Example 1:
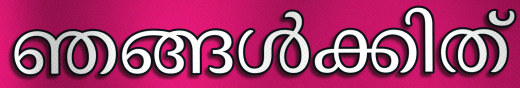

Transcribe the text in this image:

ഞങ്ങൾക്കിത്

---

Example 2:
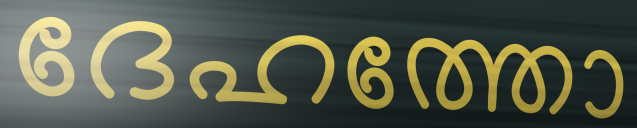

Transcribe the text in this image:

ദേഹത്തോ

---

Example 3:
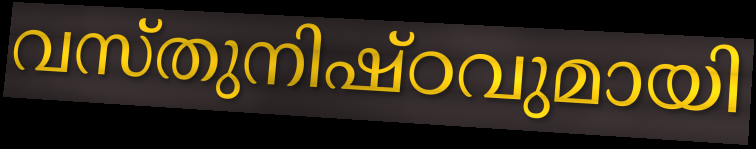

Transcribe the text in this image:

വസ്തുനിഷ്ഠവുമായി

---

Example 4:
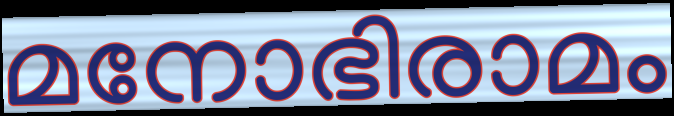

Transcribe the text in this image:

മനോഭിരാമം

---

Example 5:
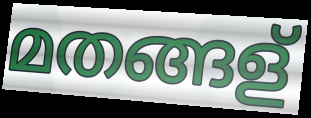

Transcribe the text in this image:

മതങ്ങള്